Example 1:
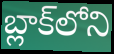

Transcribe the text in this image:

బ్లాక్‌లోని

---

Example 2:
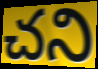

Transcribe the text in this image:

చని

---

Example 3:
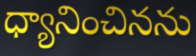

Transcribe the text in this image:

ధ్యానించినను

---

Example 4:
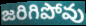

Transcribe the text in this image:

జరిగిపోవు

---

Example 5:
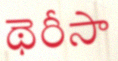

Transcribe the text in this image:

థెరీసా